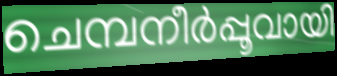
ചെമ്പനീർപ്പൂവായി